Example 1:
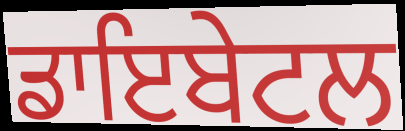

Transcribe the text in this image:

ਡਾਇਬੇਟਲ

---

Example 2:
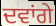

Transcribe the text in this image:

ਦਵਾਂਗੇ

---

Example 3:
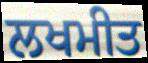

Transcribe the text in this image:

ਲਖਮੀਤ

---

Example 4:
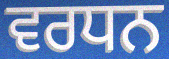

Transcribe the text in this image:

ਵਰਧਨ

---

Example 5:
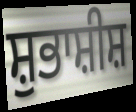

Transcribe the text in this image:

ਸ਼ੁਭਾਸ਼ੀਸ਼